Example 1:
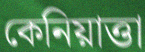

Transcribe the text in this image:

কেনিয়াত্তা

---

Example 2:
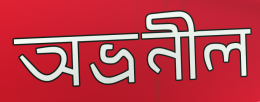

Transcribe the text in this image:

অভ্রনীল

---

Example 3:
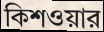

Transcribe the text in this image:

কিশওয়ার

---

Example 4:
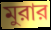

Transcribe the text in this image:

মুরার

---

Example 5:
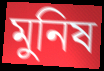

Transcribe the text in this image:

মুনিষ